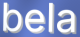
bela